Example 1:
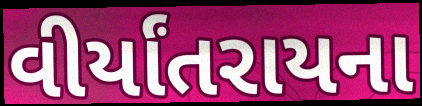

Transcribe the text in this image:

વીર્યાંતરાયના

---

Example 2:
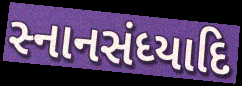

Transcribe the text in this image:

સ્નાનસંધ્યાદિ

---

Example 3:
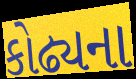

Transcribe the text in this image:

કોઢ્યના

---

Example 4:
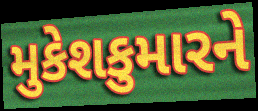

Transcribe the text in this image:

મુકેશકુમારને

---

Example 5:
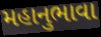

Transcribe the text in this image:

મહાનુભાવા